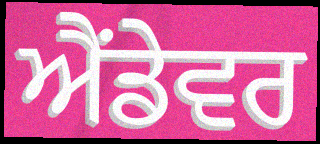
ਐਂਡੇਵਰ